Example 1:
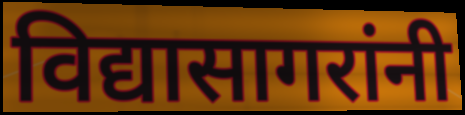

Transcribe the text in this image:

विद्यासागरांनी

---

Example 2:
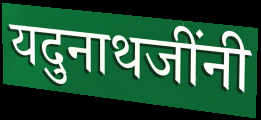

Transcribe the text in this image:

यदुनाथजींनी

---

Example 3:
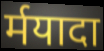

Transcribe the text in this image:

र्मयादा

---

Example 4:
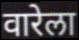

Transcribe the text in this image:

वारेला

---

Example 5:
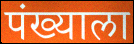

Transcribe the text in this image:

पंख्याला